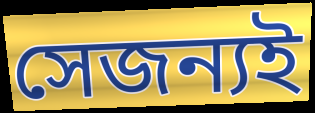
সেজন্যই